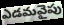
ఎడమవైపు